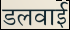
डलवाई